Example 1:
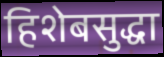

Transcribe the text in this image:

हिशेबसुद्धा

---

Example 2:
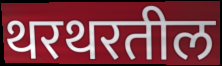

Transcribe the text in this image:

थरथरतील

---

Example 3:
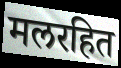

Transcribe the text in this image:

मलरहित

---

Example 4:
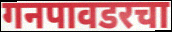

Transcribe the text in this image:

गनपावडरचा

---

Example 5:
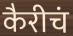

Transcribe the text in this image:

कैरीचं